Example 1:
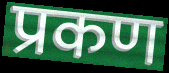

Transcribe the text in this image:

प्रकण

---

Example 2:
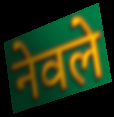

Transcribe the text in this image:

नेवले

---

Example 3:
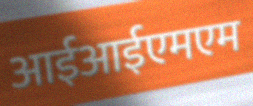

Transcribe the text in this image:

आईआईएमएम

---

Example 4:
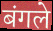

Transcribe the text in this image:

बंगले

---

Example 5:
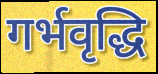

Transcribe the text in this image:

गर्भवृद्धि